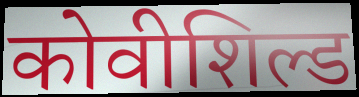
कोवीशिल्ड